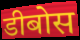
डीबोस